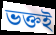
ভক্তই